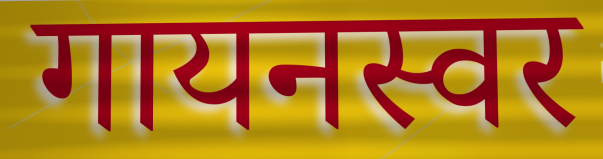
गायनस्वर